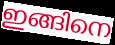
ഇങ്ങിനെ